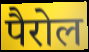
पैरोल